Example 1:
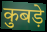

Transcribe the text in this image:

कुबड़े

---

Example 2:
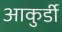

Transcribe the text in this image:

आकुर्डी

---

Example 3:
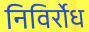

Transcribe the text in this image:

निविर्रोध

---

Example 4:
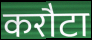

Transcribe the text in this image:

करौटा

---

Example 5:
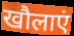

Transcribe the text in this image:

खौलाएं